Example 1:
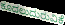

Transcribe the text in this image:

ಕೂದಲುದುರುವಿಕೆ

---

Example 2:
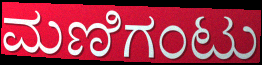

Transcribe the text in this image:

ಮಣಿಗಂಟು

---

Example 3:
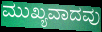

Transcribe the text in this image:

ಮುಖ್ಯವಾದವು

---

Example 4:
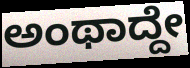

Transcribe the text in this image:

ಅಂಥಾದ್ದೇ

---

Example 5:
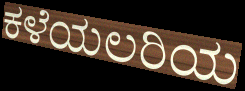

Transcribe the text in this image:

ಕಳೆಯಲರಿಯ